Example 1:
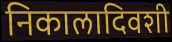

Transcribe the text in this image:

निकालादिवशी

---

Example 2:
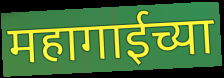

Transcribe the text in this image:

महागाईच्या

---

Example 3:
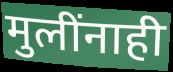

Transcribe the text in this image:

मुलींनाही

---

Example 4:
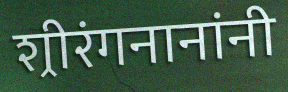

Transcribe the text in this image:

श्रीरंगनानांनी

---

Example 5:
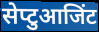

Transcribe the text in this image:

सेप्टुआजिंट